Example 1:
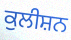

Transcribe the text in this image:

ਕੁਲੀਸ਼ਨ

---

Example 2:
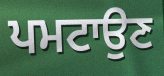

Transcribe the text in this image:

ਪਮਟਾਉਣ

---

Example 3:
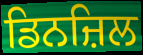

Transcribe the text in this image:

ਡਿਨਜ਼ਿਲ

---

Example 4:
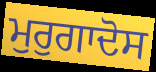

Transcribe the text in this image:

ਮੁਰੁਗਾਦੋਸ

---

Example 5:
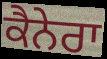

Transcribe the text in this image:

ਕੈਨੇਰਾ